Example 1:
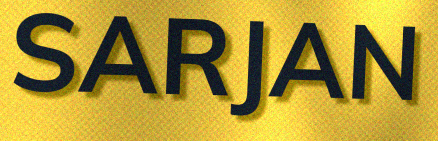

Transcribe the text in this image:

SARJAN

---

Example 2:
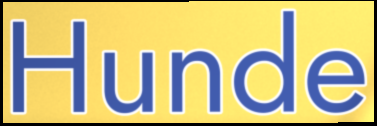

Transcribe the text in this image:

Hunde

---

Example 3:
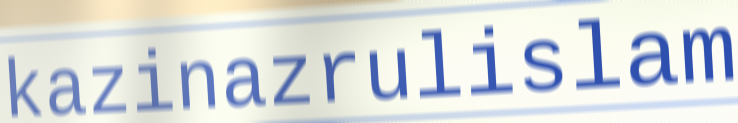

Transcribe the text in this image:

kazinazrulislam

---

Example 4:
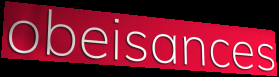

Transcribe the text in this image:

obeisances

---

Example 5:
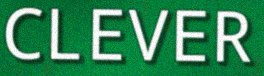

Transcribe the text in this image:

CLEVER